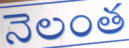
నెలంత